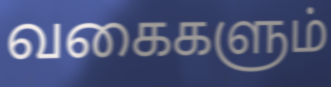
வகைகளும்